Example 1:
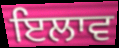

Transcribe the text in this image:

ਇਲਾਵ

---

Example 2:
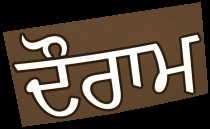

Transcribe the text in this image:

ਦੌਰਾਮ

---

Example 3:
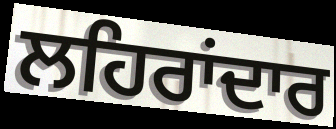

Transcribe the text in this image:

ਲਹਿਰਾਂਦਾਰ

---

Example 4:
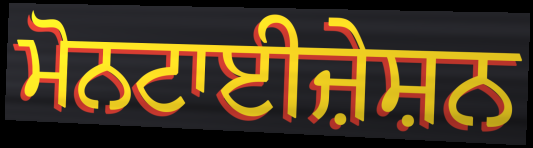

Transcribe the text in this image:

ਮੋਨਟਾਈਜ਼ੇਸ਼ਨ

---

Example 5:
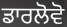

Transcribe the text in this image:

ਡਾਰਲੋਵੋ